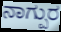
ನಾಗ್ಪುರ